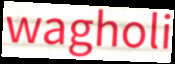
wagholi